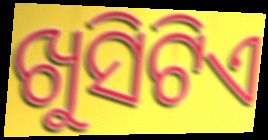
ଖୁସିଟିଏ